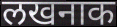
लखनाक